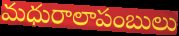
మధురాలాపంబులు